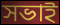
সভাই